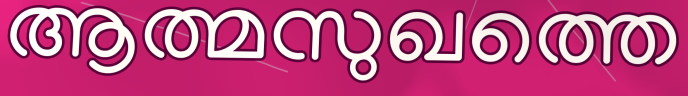
ആത്മസുഖത്തെ